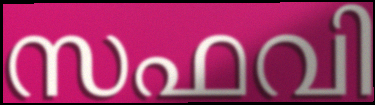
സഫവി